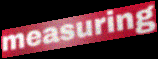
measuring